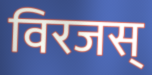
विरजस्